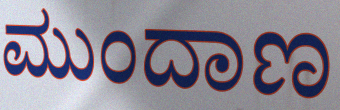
ಮುಂದಾಣ